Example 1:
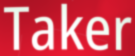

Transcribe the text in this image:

Taker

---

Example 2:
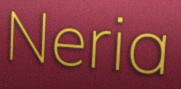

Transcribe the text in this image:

Neria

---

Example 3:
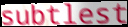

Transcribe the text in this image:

subtlest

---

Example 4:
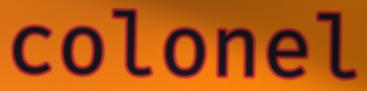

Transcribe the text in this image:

colonel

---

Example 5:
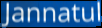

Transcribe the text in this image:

Jannatul